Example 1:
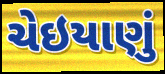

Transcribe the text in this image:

ચેઇયાણું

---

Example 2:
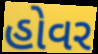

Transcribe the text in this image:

હોવર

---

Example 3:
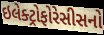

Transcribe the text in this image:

ઇલેક્ટ્રોફોરેસીસનો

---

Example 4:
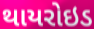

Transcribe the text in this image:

થાયરોઇડ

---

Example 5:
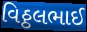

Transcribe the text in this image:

વિઠ્ઠલભાઈ